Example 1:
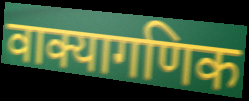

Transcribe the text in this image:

वाक्यागणिक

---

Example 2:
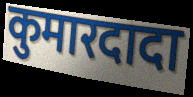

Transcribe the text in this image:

कुमारदादा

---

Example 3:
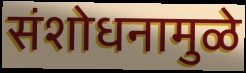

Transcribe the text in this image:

संशोधनामुळे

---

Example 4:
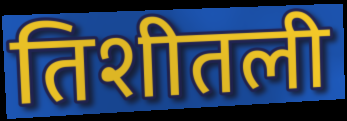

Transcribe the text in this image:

तिशीतली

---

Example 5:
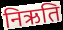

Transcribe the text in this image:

निऋति